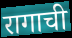
रागाची